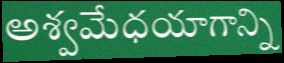
అశ్వమేధయాగాన్ని